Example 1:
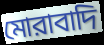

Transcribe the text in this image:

মোরাবাদি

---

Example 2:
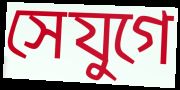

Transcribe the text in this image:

সেযুগে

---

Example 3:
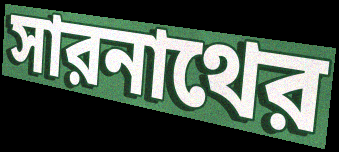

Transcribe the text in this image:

সারনাথের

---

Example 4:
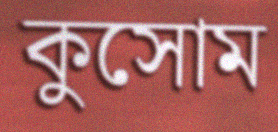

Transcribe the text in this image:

কুসোম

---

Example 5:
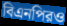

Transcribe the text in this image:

বিএনপিরও